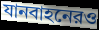
যানবাহনেরও